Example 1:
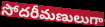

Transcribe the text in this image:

సోదరీమణులుగా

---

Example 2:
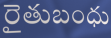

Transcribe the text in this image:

రైతుబంధు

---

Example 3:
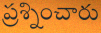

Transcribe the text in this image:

ప్రశ్నించారు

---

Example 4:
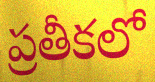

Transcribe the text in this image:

ప్రతీకలో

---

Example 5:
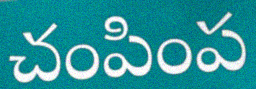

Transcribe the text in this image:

చంపింప